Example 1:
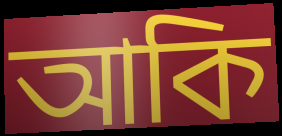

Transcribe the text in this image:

আকি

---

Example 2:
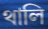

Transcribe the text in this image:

থালি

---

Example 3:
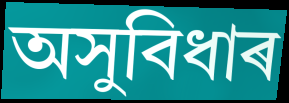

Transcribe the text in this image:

অসুবিধাৰ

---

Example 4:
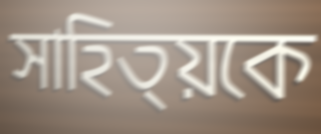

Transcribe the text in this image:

সাহিত্য়কে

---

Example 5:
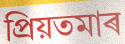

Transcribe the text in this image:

প্ৰিয়তমাৰ